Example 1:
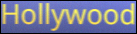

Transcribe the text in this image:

Hollywood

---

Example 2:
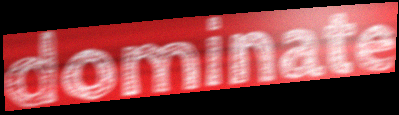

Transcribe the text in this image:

dominate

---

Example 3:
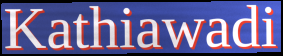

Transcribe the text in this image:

Kathiawadi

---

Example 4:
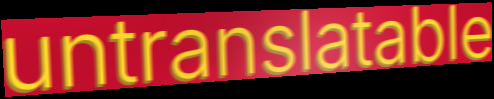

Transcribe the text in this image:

untranslatable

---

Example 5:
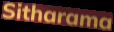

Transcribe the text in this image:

Sitharama